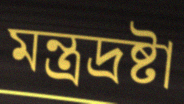
মন্ত্রদ্রষ্টা